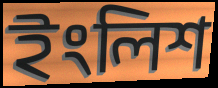
ইংলিশ